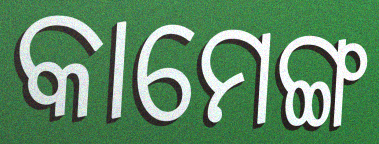
କାମେଙ୍ଗ